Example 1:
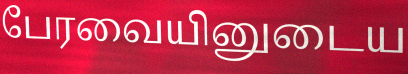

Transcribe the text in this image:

பேரவையினுடைய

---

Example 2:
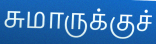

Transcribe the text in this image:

சுமாருக்குச்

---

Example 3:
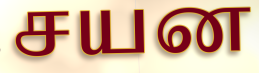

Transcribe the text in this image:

சயன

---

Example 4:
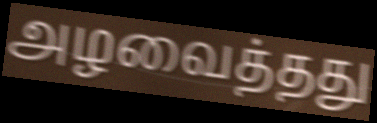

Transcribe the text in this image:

அழவைத்தது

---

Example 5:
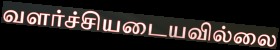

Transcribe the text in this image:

வளர்ச்சியடையவில்லை